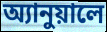
অ্যানুয়ালে